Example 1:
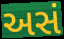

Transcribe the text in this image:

અસં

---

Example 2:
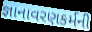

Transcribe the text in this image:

જ્ઞાનાવરણકર્મની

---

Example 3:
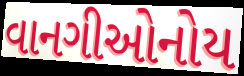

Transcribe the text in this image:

વાનગીઓનોય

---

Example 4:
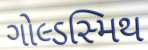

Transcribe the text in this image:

ગોલ્ડસ્મિથ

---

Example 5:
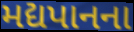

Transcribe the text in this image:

મદ્યપાનના